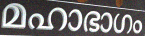
മഹാഭാഗം